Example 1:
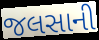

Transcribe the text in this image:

જલસાની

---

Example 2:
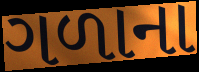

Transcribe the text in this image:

ગળાના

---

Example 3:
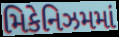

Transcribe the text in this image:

મિકેનિઝમમાં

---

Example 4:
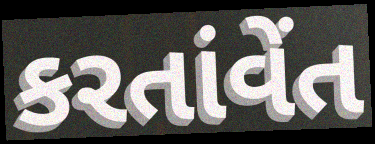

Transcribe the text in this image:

કરતાંવેંત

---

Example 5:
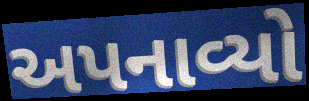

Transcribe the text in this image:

અપનાવ્યો